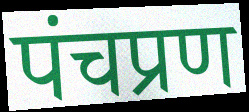
पंचप्रण